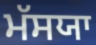
ਮੱਸਯਾ